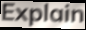
Explain